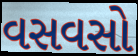
વસવસો